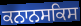
ਕਨਾਨਸਕਿਸ